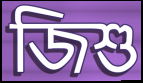
জিশু